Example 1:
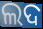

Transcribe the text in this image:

ଲଦ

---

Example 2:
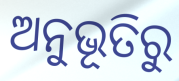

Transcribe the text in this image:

ଅନୁଭୂତିରୁ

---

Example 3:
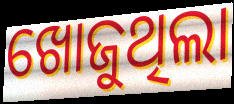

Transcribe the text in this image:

ଖୋଜୁଥିଲା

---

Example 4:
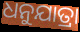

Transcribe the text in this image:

ଧନୁଯାତ୍ରା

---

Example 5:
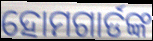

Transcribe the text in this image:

ହୋମଗାର୍ଡଙ୍କ